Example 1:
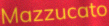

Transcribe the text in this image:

Mazzucato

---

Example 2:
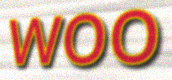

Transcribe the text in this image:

woo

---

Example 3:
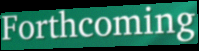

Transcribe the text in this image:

Forthcoming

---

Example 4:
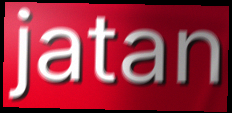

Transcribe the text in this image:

jatan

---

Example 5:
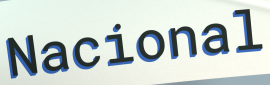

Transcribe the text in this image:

Nacional